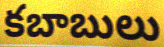
కబాబులు